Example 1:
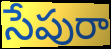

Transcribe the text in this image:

సేపురా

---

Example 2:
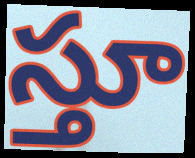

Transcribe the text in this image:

స్తూ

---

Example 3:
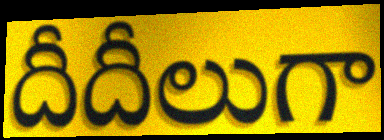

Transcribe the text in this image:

దీదీలుగా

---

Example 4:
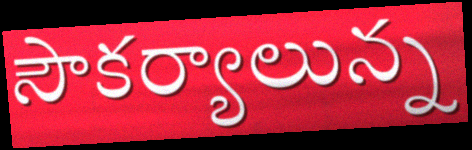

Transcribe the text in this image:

సౌకర్యాలున్న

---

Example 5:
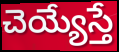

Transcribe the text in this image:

చెయ్యేస్తే